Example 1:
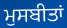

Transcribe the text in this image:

ਮੁਸਬੀਤਾਂ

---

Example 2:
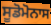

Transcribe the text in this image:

ਸੂਡੋਮੋਨਾਸ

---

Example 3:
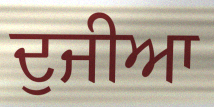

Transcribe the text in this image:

ਦੁਜੀਆ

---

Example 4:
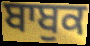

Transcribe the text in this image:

ਬਾਬੁਕ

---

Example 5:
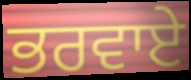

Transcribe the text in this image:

ਭਰਵਾਏ